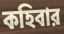
কহিবার